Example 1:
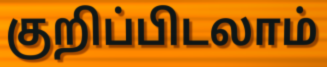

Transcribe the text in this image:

குறிப்பிடலாம்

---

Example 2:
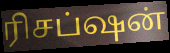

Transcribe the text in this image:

ரிசப்ஷன்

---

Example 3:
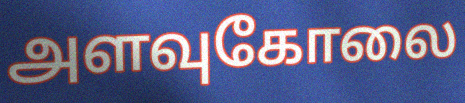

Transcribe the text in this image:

அளவுகோலை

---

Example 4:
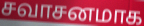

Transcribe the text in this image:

சவாசனமாக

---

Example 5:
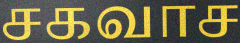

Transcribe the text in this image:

சகவாச